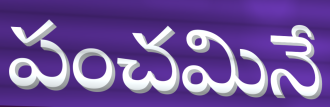
పంచమినే